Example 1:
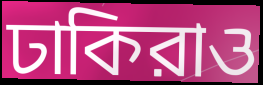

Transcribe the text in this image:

ঢাকিরাও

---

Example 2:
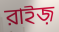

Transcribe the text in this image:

রাইজ়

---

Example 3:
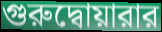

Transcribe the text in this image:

গুরুদ্বোয়ারার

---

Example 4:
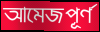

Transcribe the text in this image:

আমেজপূর্ণ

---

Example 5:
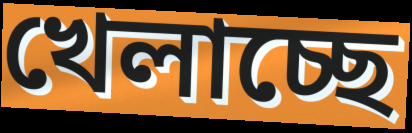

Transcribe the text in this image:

খেলাচ্ছে